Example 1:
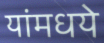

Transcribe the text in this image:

यांमधये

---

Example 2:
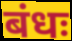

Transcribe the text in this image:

बंधः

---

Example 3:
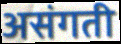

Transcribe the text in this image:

असंगती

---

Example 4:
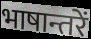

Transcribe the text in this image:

भाषान्तरें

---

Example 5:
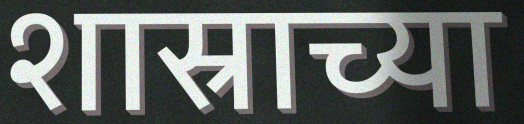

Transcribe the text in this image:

शास्राच्या